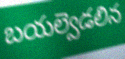
బయల్వెడలిన